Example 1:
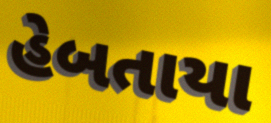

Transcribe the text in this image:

હેબતાયા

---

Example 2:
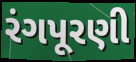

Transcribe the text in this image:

રંગપૂરણી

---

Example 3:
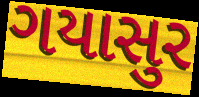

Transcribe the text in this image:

ગયાસુર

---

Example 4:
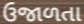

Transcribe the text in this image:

ઉજાળતા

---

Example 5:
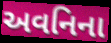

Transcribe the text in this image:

અવનિના